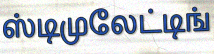
ஸ்டிமுலேட்டிங்